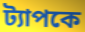
ট্যাপকে